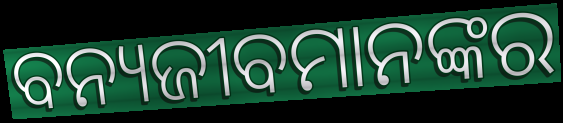
ବନ୍ୟଜୀବମାନଙ୍କର